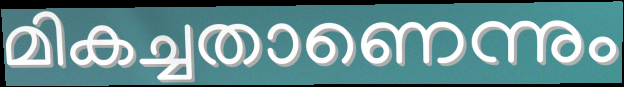
മികച്ചതാണെന്നും